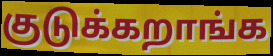
குடுக்கறாங்க